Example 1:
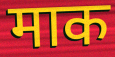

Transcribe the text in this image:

माक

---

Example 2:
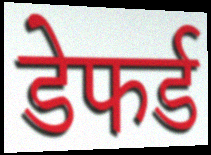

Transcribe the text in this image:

डेफर्ड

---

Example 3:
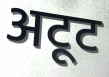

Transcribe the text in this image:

अटूट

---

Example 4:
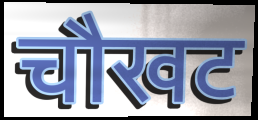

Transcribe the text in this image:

चौखट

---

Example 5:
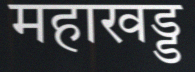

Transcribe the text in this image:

महाखड्ड